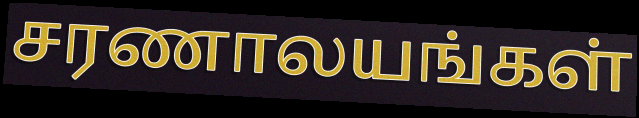
சரணாலயங்கள்